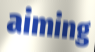
aiming